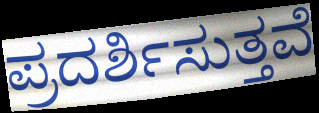
ಪ್ರದರ್ಶಿಸುತ್ತವೆ